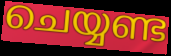
ചെയ്യണ്ട